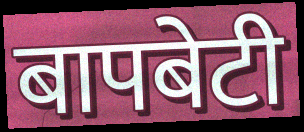
बापबेटी